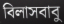
বিলাসবাবু